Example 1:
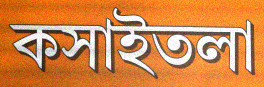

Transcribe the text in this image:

কসাইতলা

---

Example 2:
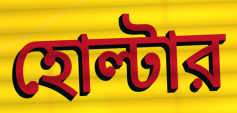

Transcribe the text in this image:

হোল্টার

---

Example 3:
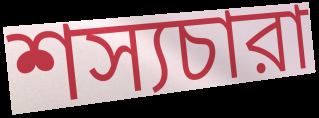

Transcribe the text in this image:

শস্যচারা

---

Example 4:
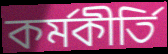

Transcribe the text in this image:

কর্মকীর্তি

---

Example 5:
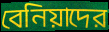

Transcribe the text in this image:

বেনিয়াদের